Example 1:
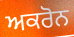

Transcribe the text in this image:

ਅਕਰੋਨ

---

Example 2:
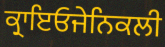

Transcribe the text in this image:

ਕ੍ਰਾਇਓਜੇਨਿਕਲੀ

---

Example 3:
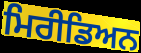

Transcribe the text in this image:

ਮਿਰੀਡਿਅਨ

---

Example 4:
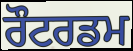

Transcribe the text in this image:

ਰੌਟਰਡਮ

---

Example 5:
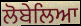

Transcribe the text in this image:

ਲੋਬੇਲਿਆ